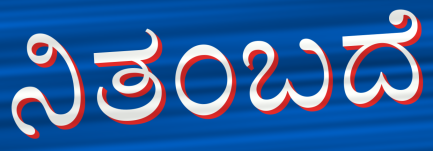
ನಿತಂಬದೆ